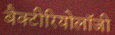
बैक्टीरियोलॉजी